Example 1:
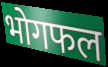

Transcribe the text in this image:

भोगफल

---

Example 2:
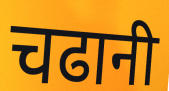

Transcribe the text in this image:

चढानी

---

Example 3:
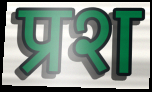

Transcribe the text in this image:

प्रश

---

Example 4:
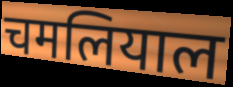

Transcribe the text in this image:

चमलियाल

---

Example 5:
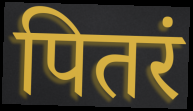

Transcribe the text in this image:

पितरं